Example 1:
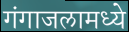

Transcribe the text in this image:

गंगाजलामध्ये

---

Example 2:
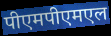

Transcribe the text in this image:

पीएमपीएमएल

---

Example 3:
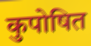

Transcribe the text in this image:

कुपोषित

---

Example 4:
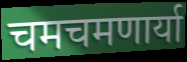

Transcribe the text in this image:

चमचमणार्या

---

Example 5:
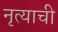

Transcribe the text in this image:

नृत्याची